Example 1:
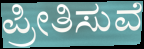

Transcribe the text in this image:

ಪ್ರೀತಿಸುವೆ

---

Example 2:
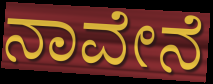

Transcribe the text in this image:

ನಾವೇನೆ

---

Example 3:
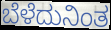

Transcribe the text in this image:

ಬೆಳೆದುನಿಂತ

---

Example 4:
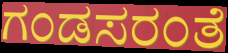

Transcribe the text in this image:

ಗಂಡಸರಂತೆ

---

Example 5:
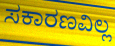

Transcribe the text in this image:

ಸಕಾರಣವಿಲ್ಲ